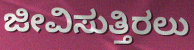
ಜೀವಿಸುತ್ತಿರಲು